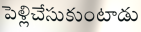
పెళ్లిచేసుకుంటాడు